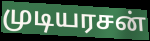
முடியரசன்